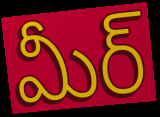
మీర్